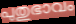
പുതുഭാവം